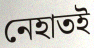
নেহাতই